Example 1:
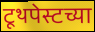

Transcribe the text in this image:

टूथपेस्टच्या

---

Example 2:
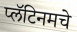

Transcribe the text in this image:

प्लॅटिनमचे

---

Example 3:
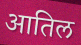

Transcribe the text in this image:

आतिल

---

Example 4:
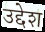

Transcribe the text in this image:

उद्देश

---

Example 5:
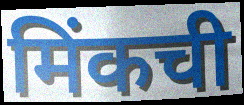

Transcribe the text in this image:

मिंकची